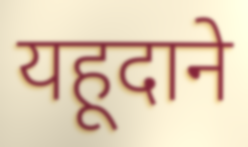
यहूदाने